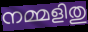
നമ്മളിതു